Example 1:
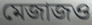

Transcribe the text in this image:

মেজাজও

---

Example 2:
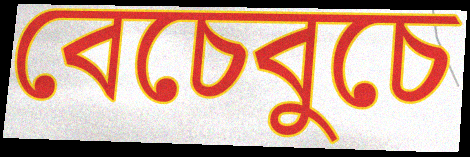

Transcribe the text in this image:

বেচেবুচে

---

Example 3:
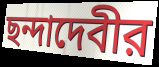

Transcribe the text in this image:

ছন্দাদেবীর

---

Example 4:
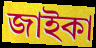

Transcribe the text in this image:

জাইকা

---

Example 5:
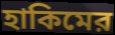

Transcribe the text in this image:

হাকিমের